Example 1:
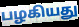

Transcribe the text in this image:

பழகியது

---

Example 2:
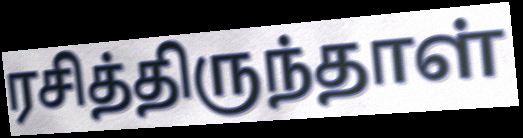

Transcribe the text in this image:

ரசித்திருந்தாள்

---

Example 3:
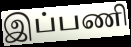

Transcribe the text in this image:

இப்பணி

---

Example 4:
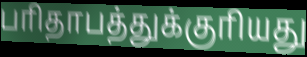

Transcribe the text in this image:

பரிதாபத்துக்குரியது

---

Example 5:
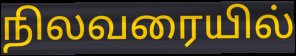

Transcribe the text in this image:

நிலவரையில்